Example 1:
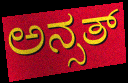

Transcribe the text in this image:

ಅನ್ಸತ್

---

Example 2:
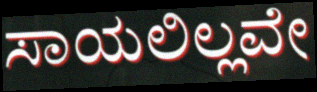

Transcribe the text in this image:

ಸಾಯಲಿಲ್ಲವೇ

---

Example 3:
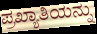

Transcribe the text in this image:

ಪ್ರಖ್ಯಾತಿಯನ್ನು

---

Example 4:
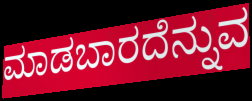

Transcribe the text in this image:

ಮಾಡಬಾರದೆನ್ನುವ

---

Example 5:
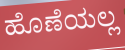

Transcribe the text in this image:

ಹೊಣೆಯಲ್ಲ